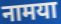
नामया